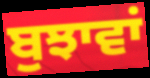
ਬੁਝਾਵਾਂ